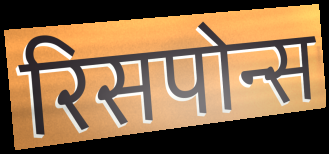
रिसपोन्स